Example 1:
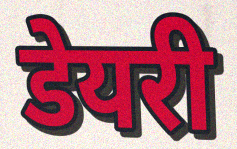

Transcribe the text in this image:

डेयरी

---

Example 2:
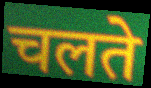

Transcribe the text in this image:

चलते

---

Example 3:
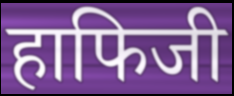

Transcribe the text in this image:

हाफिजी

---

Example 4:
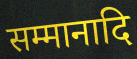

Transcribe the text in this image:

सम्मानादि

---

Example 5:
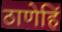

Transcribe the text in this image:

ठाणेहिं